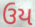
ઉય